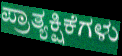
ಪ್ರಾತ್ಯಕ್ಷಿಕೆಗಳು